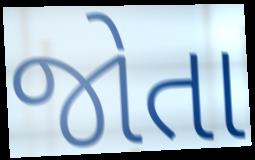
જોતા